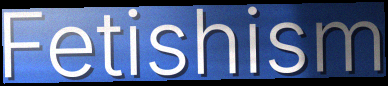
Fetishism